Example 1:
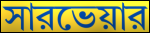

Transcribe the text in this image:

সারভেয়ার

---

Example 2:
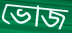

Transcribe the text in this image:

ভোজ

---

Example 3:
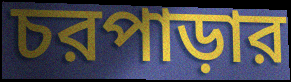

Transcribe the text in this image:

চরপাড়ার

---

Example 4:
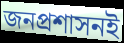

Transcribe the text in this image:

জনপ্রশাসনই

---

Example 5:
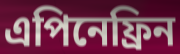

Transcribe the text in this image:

এপিনেফ্রিন